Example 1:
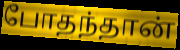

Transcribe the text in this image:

போதந்தான்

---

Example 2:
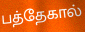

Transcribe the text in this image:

பத்தேகால்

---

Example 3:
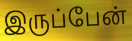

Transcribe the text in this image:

இருப்பேன்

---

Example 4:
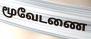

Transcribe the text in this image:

மூவேடணை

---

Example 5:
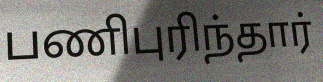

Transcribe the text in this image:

பணிபுரிந்தார்